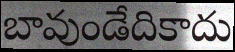
బావుండేదికాదు